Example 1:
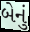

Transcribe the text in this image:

બેનું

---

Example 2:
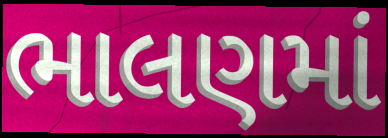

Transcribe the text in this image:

ભાલણમાં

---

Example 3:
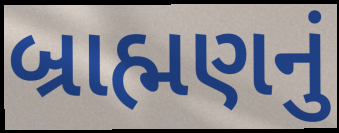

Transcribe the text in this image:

બ્રાહ્મણનું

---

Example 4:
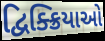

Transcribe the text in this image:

દ્વિક્ક્રિયાઓ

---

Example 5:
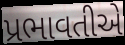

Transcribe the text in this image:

પ્રભાવતીએ